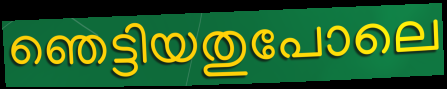
ഞെട്ടിയതുപോലെ